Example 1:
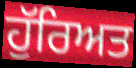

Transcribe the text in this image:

ਹੁੱਰਿਅਤ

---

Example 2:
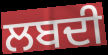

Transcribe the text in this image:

ਲਬਦੀ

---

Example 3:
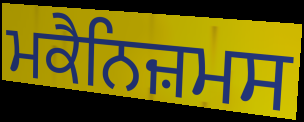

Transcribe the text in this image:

ਮਕੈਨਿਜ਼ਮਸ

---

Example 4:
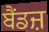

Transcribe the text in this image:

ਬੈਂਡਜ਼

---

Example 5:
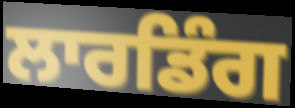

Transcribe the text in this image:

ਲਾਰਡਿੰਗ